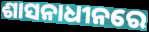
ଶାସନାଧୀନରେ